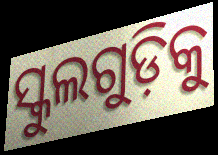
ସ୍କୁଲଗୁଡ଼ିକୁ